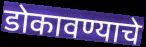
डोकावण्याचे